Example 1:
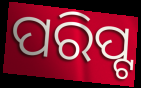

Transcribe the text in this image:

ପରିପ୍ଟ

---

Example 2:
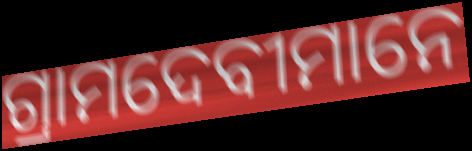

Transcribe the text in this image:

ଗ୍ରାମଦେବୀମାନେ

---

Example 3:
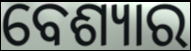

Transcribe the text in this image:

ବେଶ୍ୟାର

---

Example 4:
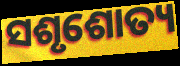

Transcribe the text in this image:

ସଶୃଶୋତ୍ୟ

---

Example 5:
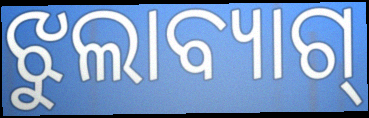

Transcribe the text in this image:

ଝୁଲାବ୍ୟାଗ୍